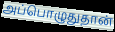
அப்பொழுதுதான்